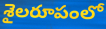
శైలరూపంలో